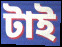
টাই